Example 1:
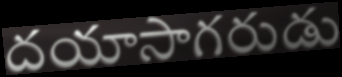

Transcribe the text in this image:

దయాసాగరుడు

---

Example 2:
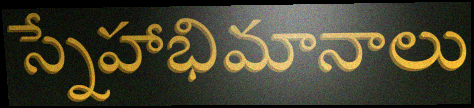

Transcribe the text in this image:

స్నేహాభిమానాలు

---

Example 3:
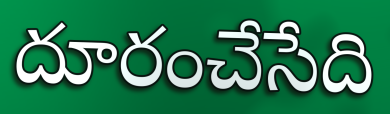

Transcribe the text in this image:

దూరంచేసేది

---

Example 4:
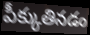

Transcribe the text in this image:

పీక్కుతినడం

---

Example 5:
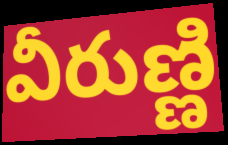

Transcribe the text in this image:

వీరుణ్ణి